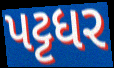
પટ્ટધર